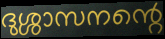
ദുശ്ശാസനന്റെ